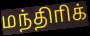
மந்திரிக்